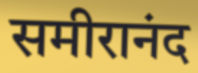
समीरानंद